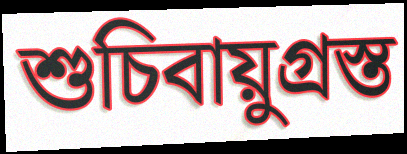
শুচিবায়ুগ্ৰস্ত